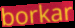
borkar